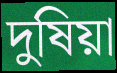
দুষিয়া